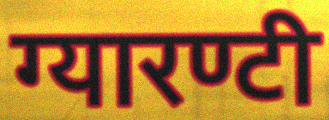
ग्यारण्टी